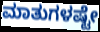
ಮಾತುಗಳಷ್ಟೇ